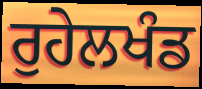
ਰੁਹੇਲਖੰਡ